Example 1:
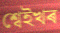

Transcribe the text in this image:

শ্বেইখৰ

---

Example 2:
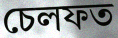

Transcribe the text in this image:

চেলফত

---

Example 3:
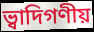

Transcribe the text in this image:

ভ্বাদিগণীয়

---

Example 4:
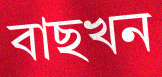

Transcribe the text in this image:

বাছখন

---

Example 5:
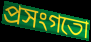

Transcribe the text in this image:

প্ৰসংগতো